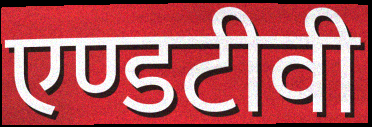
एण्डटीवी